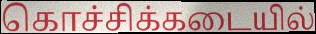
கொச்சிக்கடையில்